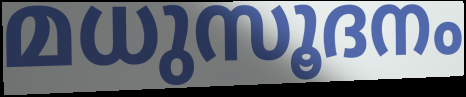
മധുസൂദനം